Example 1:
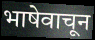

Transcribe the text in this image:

भाषेवाचून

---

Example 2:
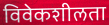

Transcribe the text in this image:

विवेकशीलता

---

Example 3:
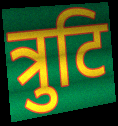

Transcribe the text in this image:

त्रुटि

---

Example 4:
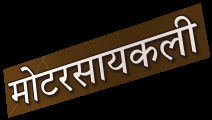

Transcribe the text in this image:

मोटरसायकली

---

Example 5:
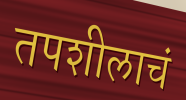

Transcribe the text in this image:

तपशीलाचं